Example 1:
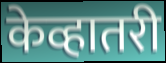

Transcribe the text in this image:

केव्हातरी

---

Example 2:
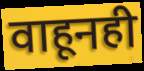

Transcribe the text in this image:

वाहूनही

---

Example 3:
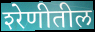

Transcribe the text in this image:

श्रेणीतील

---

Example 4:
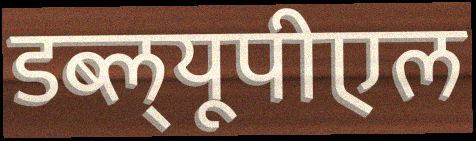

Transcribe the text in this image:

डब्ल्यूपीएल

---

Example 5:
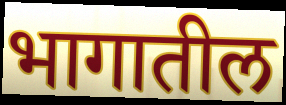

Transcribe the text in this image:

भागातील